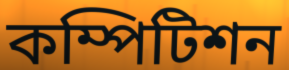
কম্পিটিশন